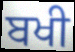
ਬਖੀ